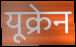
यूक्रेन